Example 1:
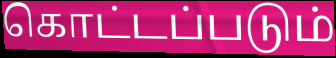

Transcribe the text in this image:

கொட்டப்படும்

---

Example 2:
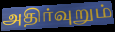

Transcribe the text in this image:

அதிர்வுறும்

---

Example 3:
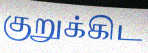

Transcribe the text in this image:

குறுக்கிட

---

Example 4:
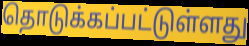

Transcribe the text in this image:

தொடுக்கப்பட்டுள்ளது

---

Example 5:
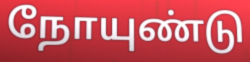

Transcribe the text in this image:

நோயுண்டு